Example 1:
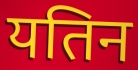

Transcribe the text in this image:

यतिन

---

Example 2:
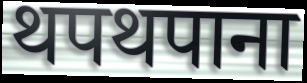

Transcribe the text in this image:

थपथपाना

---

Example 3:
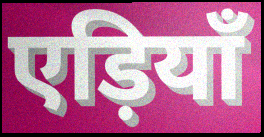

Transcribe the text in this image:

एड़ियाँ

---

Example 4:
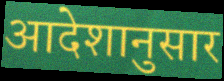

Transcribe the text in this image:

आदेशानुसार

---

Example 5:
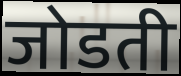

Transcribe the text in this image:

जोडती